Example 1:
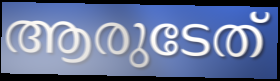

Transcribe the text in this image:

ആരുടേത്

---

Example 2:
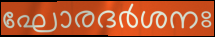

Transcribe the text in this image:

ഘോരദർശനഃ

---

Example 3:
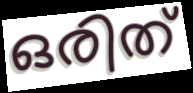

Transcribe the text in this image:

ഒരിത്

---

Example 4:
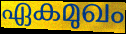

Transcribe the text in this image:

ഏകമുഖം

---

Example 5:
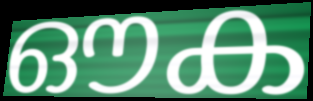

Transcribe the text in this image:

ഔക